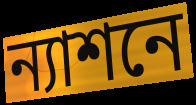
ন্যাশনে